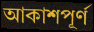
আকাশপূর্ণ